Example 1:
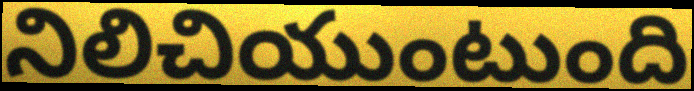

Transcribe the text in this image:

నిలిచియుంటుంది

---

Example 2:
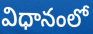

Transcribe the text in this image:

విధానంలో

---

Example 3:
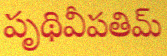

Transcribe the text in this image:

పృథివీపతిమ్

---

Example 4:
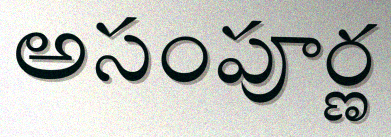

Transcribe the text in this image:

అసంపూర్ణ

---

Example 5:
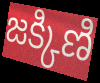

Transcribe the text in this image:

జక్కిణి